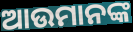
ଆଉମାନଙ୍କ